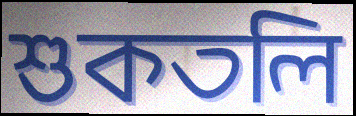
শুকতলি